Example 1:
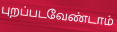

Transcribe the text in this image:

புறப்படவேண்டாம்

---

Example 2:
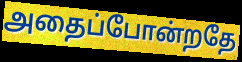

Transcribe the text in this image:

அதைப்போன்றதே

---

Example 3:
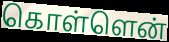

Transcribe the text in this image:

கொள்ளென்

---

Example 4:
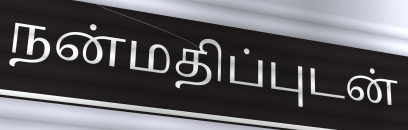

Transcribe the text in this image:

நன்மதிப்புடன்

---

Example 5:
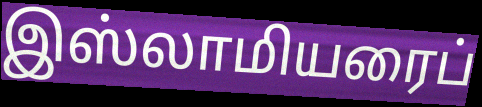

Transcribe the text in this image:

இஸ்லாமியரைப்